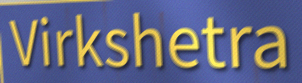
Virkshetra